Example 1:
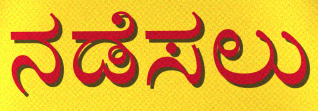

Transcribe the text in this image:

ನಡೆಸಲು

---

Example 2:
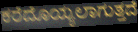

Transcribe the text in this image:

ಕರೆದೊಯ್ಯಲಾಗುತ್ತದೆ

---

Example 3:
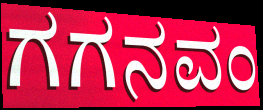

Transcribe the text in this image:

ಗಗನವಂ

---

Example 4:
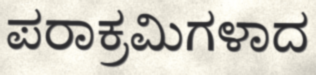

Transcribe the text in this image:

ಪರಾಕ್ರಮಿಗಳಾದ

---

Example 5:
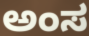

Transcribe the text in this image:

ಅಂಸ